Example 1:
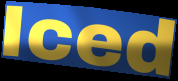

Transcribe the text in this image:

Iced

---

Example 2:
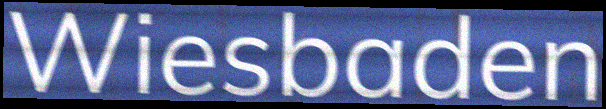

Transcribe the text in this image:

Wiesbaden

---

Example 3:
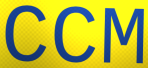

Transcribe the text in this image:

CCM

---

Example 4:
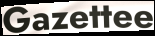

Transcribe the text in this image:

Gazettee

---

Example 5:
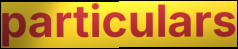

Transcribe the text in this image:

particulars